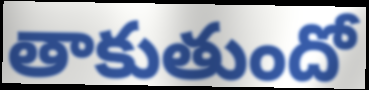
తాకుతుందో